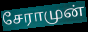
சேராமுன்